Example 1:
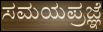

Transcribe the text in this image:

ಸಮಯಪ್ರಜ್ಞೆ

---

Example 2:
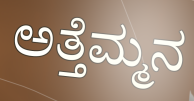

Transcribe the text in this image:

ಅತ್ತೆಮ್ಮನ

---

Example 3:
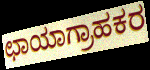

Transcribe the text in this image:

ಛಾಯಾಗ್ರಾಹಕರ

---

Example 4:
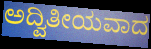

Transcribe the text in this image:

ಅದ್ವಿತೀಯವಾದ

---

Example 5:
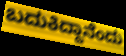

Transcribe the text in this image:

ಬದುಕಿದ್ದಾನೆಂದು